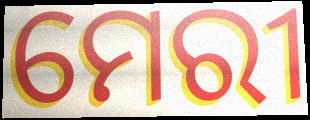
ମେରୀ